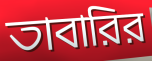
তাবারির